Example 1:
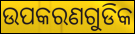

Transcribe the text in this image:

ଉପକରଣଗୁଡିକ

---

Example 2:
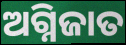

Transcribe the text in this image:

ଅଗ୍ନିଜାତ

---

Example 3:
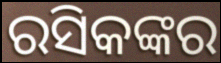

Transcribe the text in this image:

ରସିକଙ୍କର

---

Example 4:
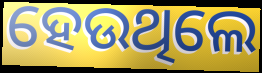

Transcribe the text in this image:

ହେଉଥିଲେ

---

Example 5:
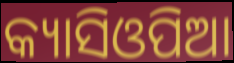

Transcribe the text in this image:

କ୍ୟାସିଓପିଆ